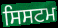
ਸਿਸਟਮ